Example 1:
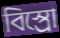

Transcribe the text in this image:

বিস্ত্রো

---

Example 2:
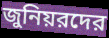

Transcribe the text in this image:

জুনিয়রদের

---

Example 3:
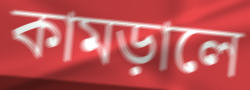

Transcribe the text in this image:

কামড়ালে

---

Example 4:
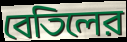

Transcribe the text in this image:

বেতিলের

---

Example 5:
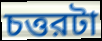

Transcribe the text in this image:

চত্তরটা